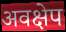
अवक्षेप